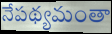
నేపథ్యమంతా